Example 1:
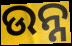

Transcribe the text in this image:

ଉନ୍ନ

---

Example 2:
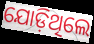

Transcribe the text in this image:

ଯୋଡ଼ିଥିଲେ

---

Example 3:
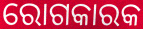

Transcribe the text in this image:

ରୋଗକାରକ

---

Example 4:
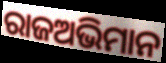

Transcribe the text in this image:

ରାଜଅଭିମାନ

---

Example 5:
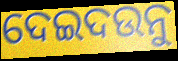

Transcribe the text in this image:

ଦେଇଦଉନୁ